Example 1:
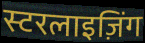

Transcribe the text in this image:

स्टरलाइज़िंग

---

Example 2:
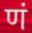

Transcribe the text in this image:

णं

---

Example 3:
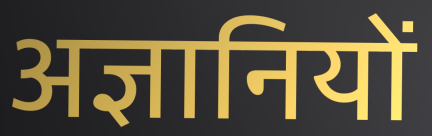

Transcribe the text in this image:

अज्ञानियों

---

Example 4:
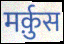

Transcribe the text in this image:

मर्क़ुस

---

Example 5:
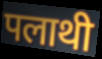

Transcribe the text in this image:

पलाथी